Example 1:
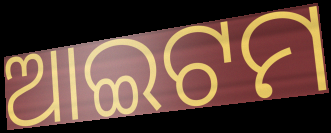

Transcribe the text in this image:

ଆଇଟମ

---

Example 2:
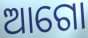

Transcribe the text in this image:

ଆଗୋ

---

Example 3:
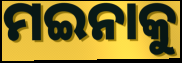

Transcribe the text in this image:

ମଇନାକୁ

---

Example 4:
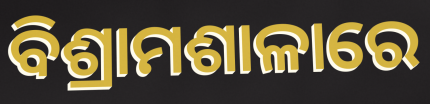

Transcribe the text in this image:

ବିଶ୍ରାମଶାଳାରେ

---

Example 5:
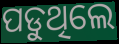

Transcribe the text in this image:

ପଡୁଥିଲେ